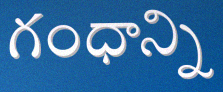
గంధాన్ని